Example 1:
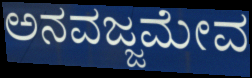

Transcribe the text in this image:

ಅನವಜ್ಜಮೇವ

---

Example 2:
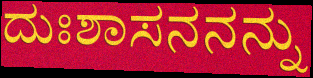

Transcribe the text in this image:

ದುಃಶಾಸನನನ್ನು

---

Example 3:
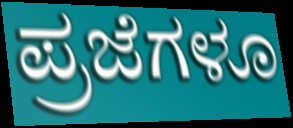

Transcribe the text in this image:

ಪ್ರಜೆಗಳೂ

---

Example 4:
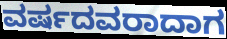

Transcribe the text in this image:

ವರ್ಷದವರಾದಾಗ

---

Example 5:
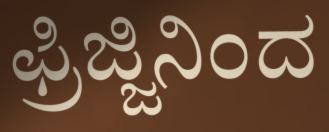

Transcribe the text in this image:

ಫ್ರಿಜ್ಜಿನಿಂದ